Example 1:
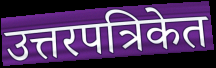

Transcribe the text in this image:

उत्तरपत्रिकेत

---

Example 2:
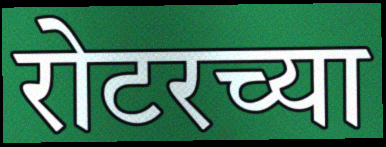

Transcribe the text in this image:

रोटरच्या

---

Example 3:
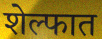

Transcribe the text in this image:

शेल्फात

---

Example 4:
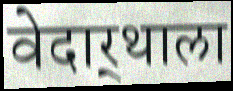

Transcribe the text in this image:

वेदार्थाला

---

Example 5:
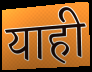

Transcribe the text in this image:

याही